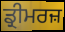
ਡ੍ਰੀਮਰਜ਼